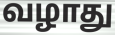
வழாது